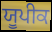
ਯੂਪੀਕ